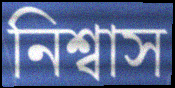
নিশ্বাস